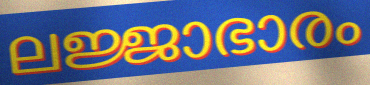
ലജ്ജാഭാരം